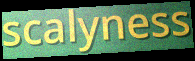
scalyness